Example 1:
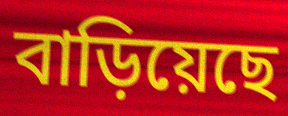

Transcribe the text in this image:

বাড়িয়েছে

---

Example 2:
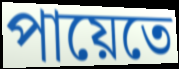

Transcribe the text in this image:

পায়েতে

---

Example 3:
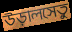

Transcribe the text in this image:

উড়ালসেতু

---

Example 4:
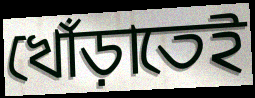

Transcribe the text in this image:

খোঁড়াতেই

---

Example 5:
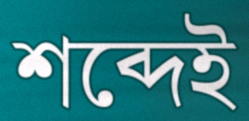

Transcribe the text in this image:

শব্দেই